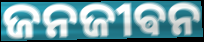
ଜନଜୀଵନ